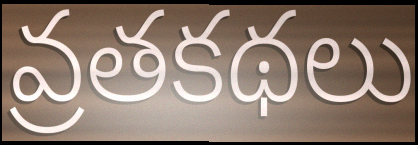
వ్రతకథలు